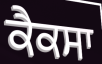
ਕੈਕਸਾ